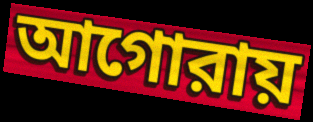
আগোরায়